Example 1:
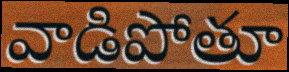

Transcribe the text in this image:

వాడిపోతూ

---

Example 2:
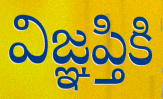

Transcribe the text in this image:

విజ్ఞప్తికి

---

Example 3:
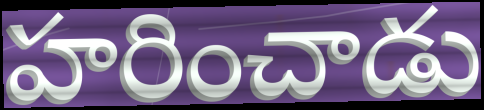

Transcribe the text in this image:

హరించాడు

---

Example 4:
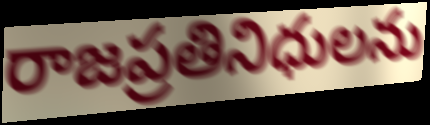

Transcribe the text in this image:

రాజప్రతినిధులను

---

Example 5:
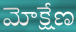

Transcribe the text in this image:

మోక్షేణ